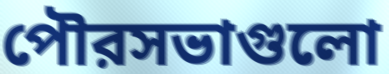
পৌরসভাগুলো